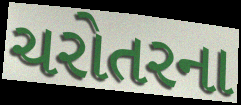
ચરોતરના